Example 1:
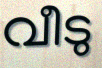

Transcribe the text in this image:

വീടു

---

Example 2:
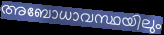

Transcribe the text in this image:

അബോധാവസ്ഥയിലും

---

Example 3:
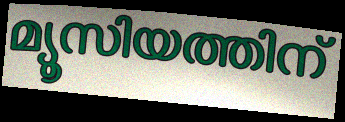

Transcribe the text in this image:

മ്യൂസിയത്തിന്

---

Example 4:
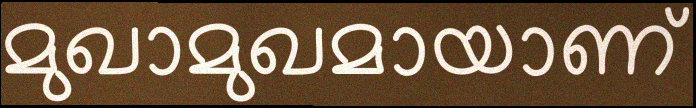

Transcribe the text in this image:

മുഖാമുഖമായാണ്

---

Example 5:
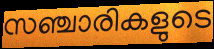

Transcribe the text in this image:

സഞ്ചാരികളുടെ